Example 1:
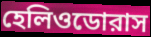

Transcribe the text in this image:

হেলিওডোরাস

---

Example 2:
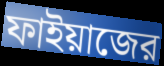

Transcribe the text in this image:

ফাইয়াজের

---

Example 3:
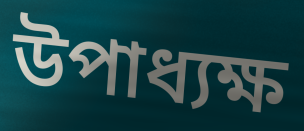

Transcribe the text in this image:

উপাধ্যক্ষ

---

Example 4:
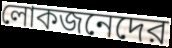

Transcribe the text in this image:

লোকজনেদের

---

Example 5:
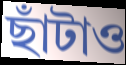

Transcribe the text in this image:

ছাঁটাও